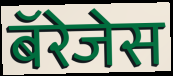
बॅरेजेस